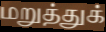
மறுத்துக்